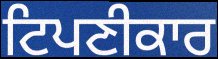
ਟਿਪਣੀਕਾਰ